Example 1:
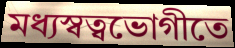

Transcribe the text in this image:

মধ্যস্বত্বভোগীতে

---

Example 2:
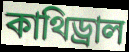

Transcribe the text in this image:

কাথিড্রাল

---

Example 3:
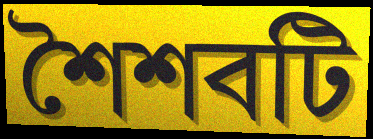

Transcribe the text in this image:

শৈশবটি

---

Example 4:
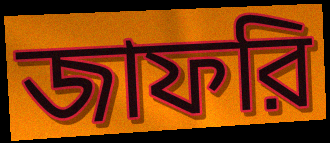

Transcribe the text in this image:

জাফরি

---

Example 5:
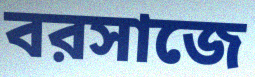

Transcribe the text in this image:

বরসাজে